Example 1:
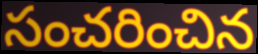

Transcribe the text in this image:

సంచరించిన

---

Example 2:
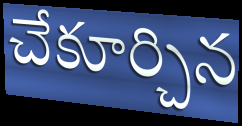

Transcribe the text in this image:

చేకూర్చిన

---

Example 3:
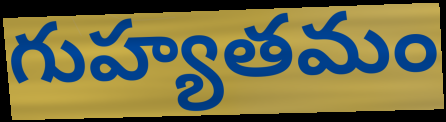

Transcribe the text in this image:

గుహ్యతమం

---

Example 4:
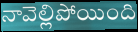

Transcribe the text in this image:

నావెల్లిపోయింది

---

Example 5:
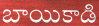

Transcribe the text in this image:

బాయికాడి